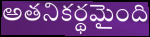
అతనికర్థమైంది